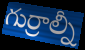
గుర్రాల్నీ